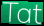
Tat